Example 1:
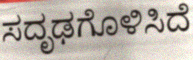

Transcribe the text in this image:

ಸದೃಢಗೊಳಿಸಿದೆ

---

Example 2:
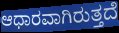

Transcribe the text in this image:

ಆಧಾರವಾಗಿರುತ್ತದೆ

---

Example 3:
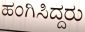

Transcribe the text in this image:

ಹಂಗಿಸಿದ್ದರು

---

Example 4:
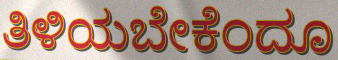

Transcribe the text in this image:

ತಿಳಿಯಬೇಕೆಂದೂ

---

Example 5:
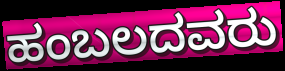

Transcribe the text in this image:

ಹಂಬಲದವರು